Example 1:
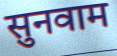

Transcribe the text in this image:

सुनवाम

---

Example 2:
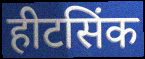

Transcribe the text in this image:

हीटसिंक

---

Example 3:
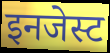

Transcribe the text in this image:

इनजेस्ट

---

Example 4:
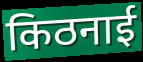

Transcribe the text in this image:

किठनाई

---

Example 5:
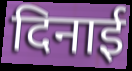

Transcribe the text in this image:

दिनाई